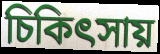
চিকিৎসায়